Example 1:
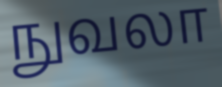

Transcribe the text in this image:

நுவலா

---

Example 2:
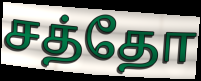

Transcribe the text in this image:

சத்தோ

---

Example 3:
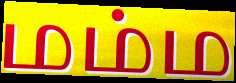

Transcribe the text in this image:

மம்ம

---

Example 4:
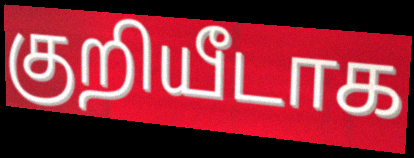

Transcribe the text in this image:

குறியீடாக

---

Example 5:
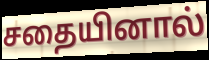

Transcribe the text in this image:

சதையினால்